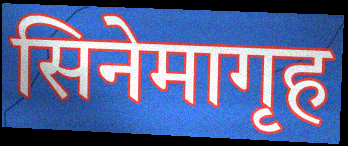
सिनेमागृह